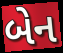
બેન